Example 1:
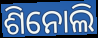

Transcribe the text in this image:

ଶିନୋଲି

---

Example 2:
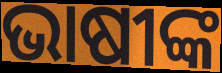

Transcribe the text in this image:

ଭାଷୀଙ୍କ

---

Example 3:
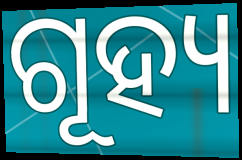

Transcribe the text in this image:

ଗୂହ୍ୟ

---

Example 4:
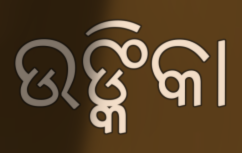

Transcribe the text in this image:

ଉଙ୍କିକା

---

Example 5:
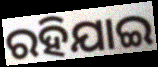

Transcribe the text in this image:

ରହିଯାଇ